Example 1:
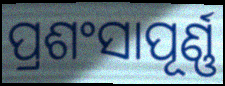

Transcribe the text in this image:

ପ୍ରଶଂସାପୂର୍ଣ୍ଣ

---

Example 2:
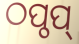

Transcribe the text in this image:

ଠପ୍ଠପ୍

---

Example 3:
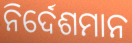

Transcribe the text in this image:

ନିର୍ଦେଶମାନ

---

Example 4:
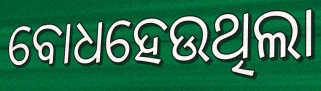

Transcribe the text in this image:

ବୋଧହେଉଥିଲା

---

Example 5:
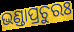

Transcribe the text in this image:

ଭଣ୍ଡାପ୍ରଚୁରଃ